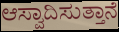
ಆಸ್ವಾದಿಸುತ್ತಾನೆ